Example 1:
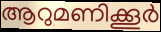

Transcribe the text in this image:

ആറുമണിക്കൂർ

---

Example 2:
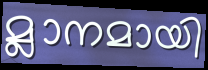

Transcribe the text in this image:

മ്ലാനമായി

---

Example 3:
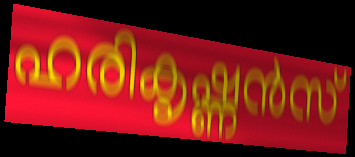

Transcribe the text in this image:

ഹരികൃഷ്ണൻസ്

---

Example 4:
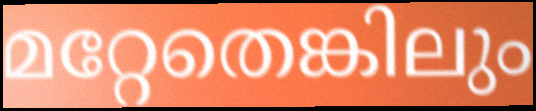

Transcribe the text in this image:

മറ്റേതെങ്കിലും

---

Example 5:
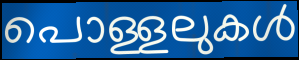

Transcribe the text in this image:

പൊള്ളലുകൾ